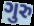
ગુરુ